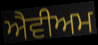
ਐਵੀਅਮ